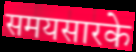
समयसारके